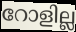
റോളില്ല